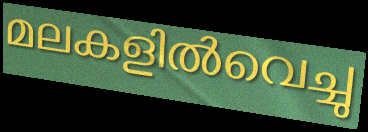
മലകളിൽവെച്ചു